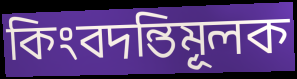
কিংবদন্তিমূলক